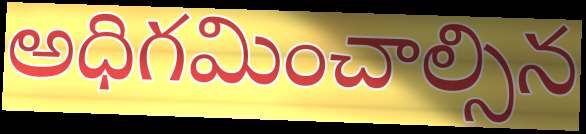
అధిగమించాల్సిన